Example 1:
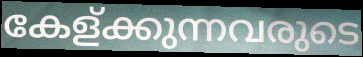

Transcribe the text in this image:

കേള്ക്കുന്നവരുടെ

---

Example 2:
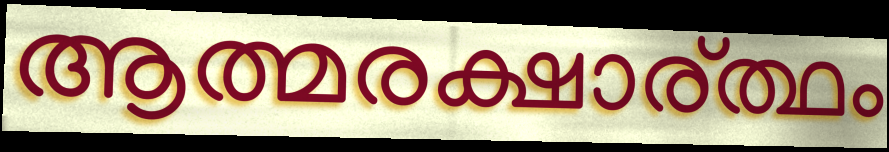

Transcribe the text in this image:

ആത്മരക്ഷാര്ത്ഥം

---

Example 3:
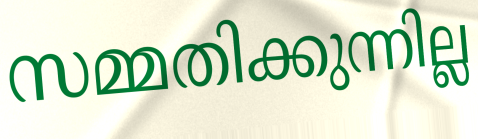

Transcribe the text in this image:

സമ്മതിക്കുന്നില്ല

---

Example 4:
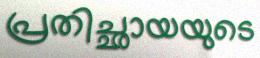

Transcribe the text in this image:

പ്രതിച്ഛായയുടെ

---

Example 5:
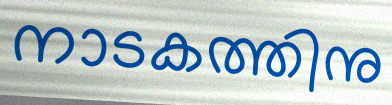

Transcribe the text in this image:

നാടകത്തിനു